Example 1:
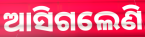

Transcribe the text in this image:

ଆସିଗଲେଣି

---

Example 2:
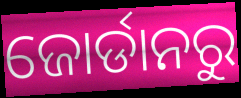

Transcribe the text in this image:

ଜୋର୍ଡାନରୁ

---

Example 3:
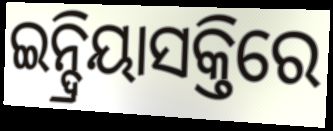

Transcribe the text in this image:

ଇନ୍ଦ୍ରିୟାସକ୍ତିରେ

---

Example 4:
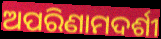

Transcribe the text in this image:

ଅପରିଣାମଦର୍ଶୀ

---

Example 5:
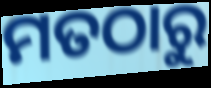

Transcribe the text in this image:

ମତଠାରୁ